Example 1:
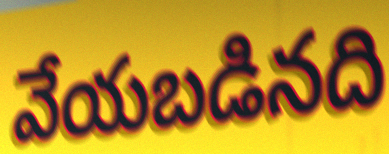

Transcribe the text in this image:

వేయబడినది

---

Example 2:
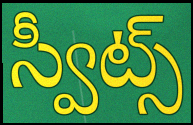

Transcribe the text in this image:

స్వీట్స్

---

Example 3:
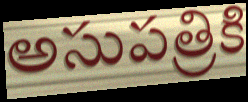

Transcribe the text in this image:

అసుపత్రికి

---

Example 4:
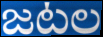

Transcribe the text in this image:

జటల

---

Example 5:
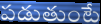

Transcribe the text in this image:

పడుతుంటే